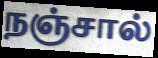
நஞ்சால்